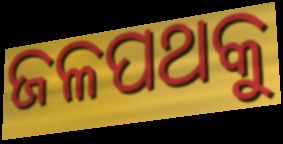
ଜଳପଥକୁ